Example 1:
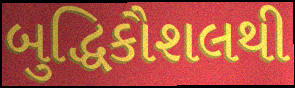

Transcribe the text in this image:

બુદ્ધિકૌશલથી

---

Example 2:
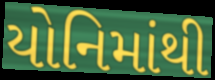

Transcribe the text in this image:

યોનિમાંથી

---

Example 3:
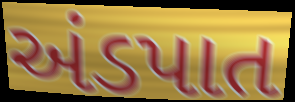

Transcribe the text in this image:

અંડપાત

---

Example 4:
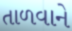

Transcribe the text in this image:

તાળવાને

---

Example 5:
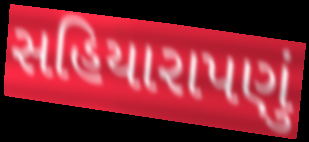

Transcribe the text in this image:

સહિયારાપણું